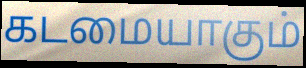
கடமையாகும்